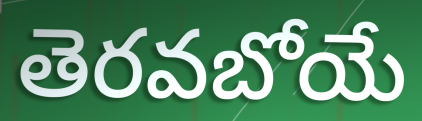
తెరవబోయే